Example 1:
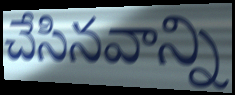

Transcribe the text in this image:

చేసినవాన్ని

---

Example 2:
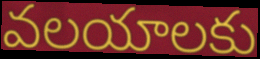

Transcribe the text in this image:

వలయాలకు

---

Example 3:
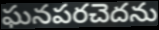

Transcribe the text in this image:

ఘనపరచెదను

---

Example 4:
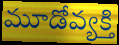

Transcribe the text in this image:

మూడోవ్యక్తి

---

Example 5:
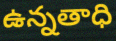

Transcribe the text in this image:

ఉన్నతాధి